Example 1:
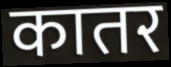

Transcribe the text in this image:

कातर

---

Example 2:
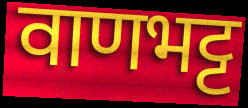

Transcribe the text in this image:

वाणभट्ट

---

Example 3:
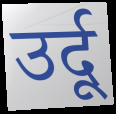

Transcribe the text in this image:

उर्दू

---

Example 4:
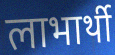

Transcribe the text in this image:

लाभार्थी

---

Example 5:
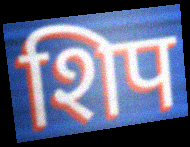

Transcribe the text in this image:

शिप